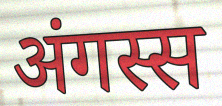
अंगस्स